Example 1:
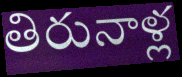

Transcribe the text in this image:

తిరునాళ్ల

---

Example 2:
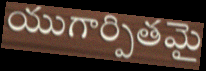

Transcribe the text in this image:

యుగార్పితమై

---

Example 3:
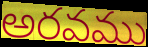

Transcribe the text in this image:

అరవము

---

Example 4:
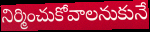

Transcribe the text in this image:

నిర్మించుకోవాలనుకునే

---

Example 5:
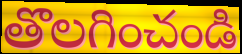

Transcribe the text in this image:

తొలగించండి